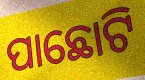
ପାଛୋଟି